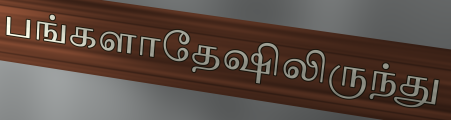
பங்களாதேஷிலிருந்து